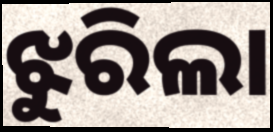
ଝୁରିଲା